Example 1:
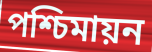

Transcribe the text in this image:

পশ্চিমায়ন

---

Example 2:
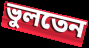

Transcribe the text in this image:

ভুলতেন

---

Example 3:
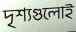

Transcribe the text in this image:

দৃশ্যগুলোই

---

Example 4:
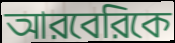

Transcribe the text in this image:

আরবেরিকে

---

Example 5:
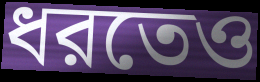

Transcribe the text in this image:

ধরতেও